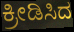
ಕ್ರೀಡಿಸಿದ